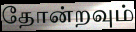
தோன்றவும்